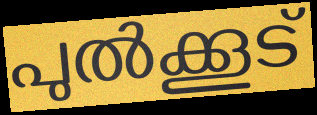
പുൽക്കൂട്